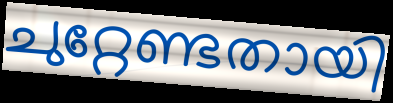
ചുറ്റേണ്ടതായി